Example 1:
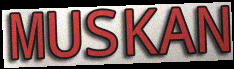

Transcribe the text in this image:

MUSKAN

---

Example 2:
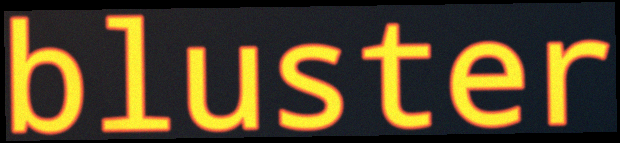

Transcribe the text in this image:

bluster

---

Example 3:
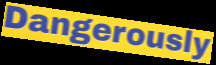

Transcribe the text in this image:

Dangerously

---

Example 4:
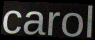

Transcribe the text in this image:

carol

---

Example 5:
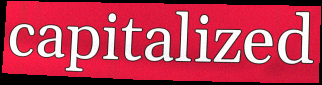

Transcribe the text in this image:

capitalized